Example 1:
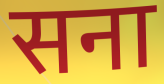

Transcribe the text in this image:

सना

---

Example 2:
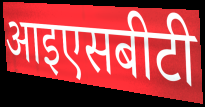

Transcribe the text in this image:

आइएसबीटी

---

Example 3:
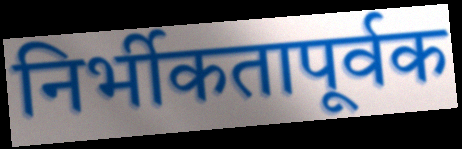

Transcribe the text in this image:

निर्भीकतापूर्वक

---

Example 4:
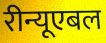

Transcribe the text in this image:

रीन्यूएबल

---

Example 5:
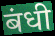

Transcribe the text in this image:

बंधी